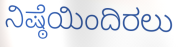
ನಿಷ್ಠೆಯಿಂದಿರಲು